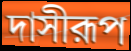
দাসীরূপ